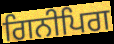
ਗਿਨੀਪਿਗ